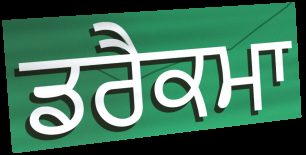
ਡਰੈਕਮਾ